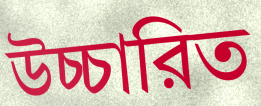
উচ্চারিত